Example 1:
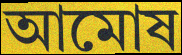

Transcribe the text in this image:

আমোষ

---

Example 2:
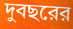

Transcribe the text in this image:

দুবছরের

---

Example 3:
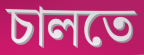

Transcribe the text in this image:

চালতে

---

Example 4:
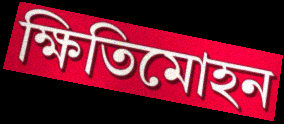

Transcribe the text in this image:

ক্ষিতিমোহন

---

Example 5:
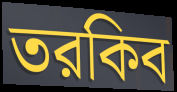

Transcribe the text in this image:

তরকিব